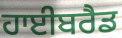
ਹਾਈਬਰੈਡ